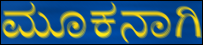
ಮೂಕನಾಗಿ